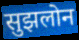
सुझलोन